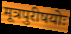
मूत्रपुरीषयोः